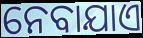
ନେବାଯାଏ